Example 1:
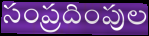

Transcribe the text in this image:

సంప్రదింపుల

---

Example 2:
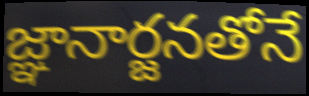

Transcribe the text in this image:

జ్ఞానార్జనతోనే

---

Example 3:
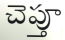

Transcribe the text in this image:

చెప్తూ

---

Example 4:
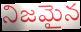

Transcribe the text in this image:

నిజమైన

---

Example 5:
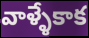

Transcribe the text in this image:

వాళ్ళేకాక